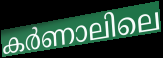
കർണാലിലെ